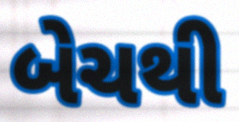
બેચથી